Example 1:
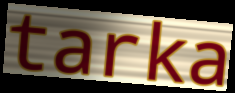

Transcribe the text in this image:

tarka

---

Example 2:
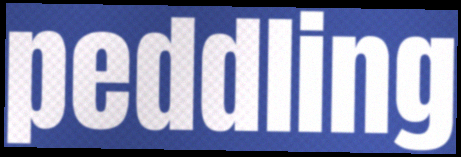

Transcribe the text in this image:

peddling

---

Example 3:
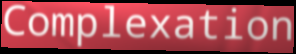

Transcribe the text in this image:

Complexation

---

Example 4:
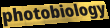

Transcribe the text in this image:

photobiology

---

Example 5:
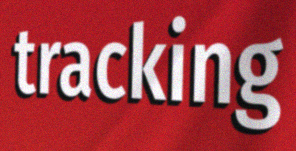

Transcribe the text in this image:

tracking